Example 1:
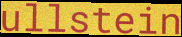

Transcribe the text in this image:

ullstein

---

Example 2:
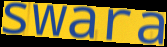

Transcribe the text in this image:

swara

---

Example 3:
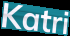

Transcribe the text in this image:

Katri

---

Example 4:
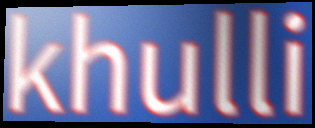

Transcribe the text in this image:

khulli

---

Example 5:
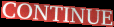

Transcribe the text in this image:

CONTINUE